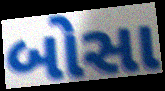
બોસા